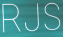
RJS